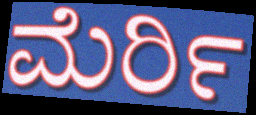
ಮೆರ್ರಿ